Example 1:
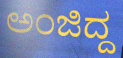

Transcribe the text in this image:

ಅಂಜಿದ್ದ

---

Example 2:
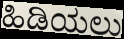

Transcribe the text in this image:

ಹಿಡಿಯಲು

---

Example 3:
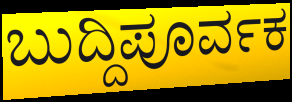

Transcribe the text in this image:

ಬುದ್ದಿಪೂರ್ವಕ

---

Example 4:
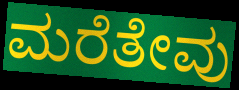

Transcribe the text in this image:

ಮರೆತೇವು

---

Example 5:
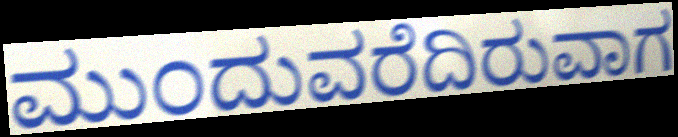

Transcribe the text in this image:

ಮುಂದುವರೆದಿರುವಾಗ